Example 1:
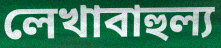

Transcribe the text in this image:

লেখাবাহুল্য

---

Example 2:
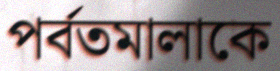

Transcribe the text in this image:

পর্বতমালাকে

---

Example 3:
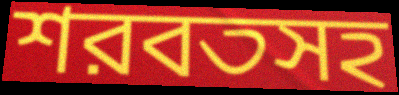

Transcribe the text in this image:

শরবতসহ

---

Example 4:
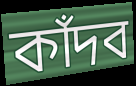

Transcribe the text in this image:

কাঁদব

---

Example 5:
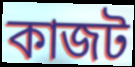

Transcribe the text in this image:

কাজট